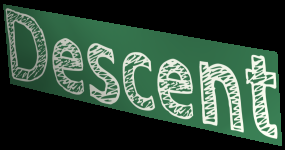
Descent